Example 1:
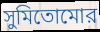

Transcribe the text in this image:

সুমিতোমোর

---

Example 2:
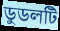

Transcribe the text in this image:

ডুডলটি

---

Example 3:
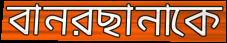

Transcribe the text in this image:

বানরছানাকে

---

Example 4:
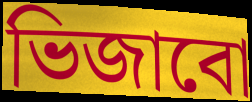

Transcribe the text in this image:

ভিজাবো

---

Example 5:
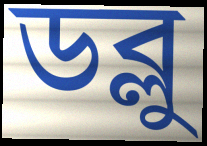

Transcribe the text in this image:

ডব্লু